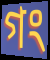
গং